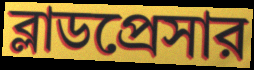
ব্লাডপ্রেসার